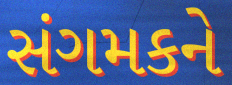
સંગમકને